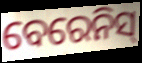
ବେରେନିସ୍